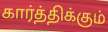
கார்த்திக்கும்